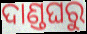
ଦାଣ୍ଡଘରୁ